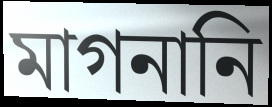
মাগনানি